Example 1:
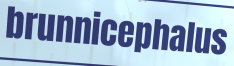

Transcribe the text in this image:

brunnicephalus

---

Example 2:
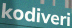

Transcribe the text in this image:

kodiveri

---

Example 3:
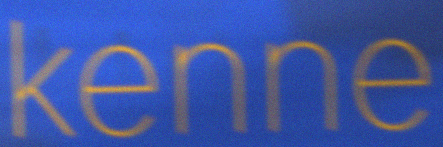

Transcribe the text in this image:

kenne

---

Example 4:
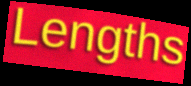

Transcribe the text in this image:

Lengths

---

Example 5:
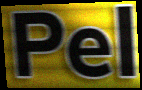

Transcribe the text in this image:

Pel